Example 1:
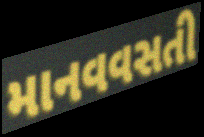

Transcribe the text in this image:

માનવવસતી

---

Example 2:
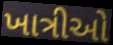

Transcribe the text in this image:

ખાત્રીઓ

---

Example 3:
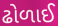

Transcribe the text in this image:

ઢોળાઈ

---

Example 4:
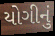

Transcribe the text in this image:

યોગીનું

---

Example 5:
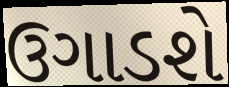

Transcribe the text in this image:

ઉગાડશે